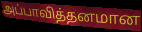
அப்பாவித்தனமான